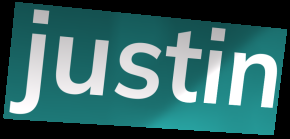
justin